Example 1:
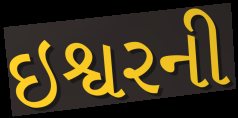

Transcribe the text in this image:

ઇશ્વરની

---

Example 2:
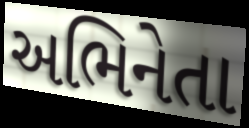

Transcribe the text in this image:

અભિનેતા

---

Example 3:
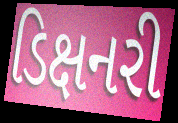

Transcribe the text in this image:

ડિક્ષનરી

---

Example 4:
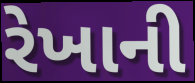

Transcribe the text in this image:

રેખાની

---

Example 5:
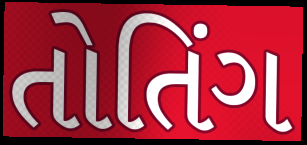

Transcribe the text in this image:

તોતિંગ